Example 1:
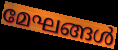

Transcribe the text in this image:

മേഘങ്ങൾ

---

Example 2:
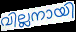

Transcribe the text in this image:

വില്ലനായി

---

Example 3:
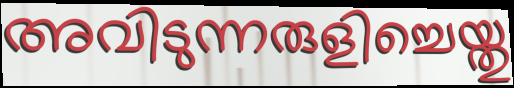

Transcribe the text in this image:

അവിടുന്നരുളിച്ചെയ്തു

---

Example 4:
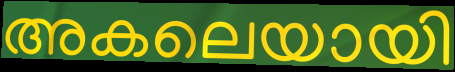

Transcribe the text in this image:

അകലെയായി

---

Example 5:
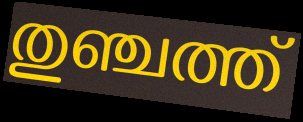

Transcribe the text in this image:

തുഞ്ചത്ത്